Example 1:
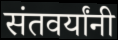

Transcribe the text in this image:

संतवर्यांनी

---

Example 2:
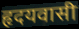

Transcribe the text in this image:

हृदयवासी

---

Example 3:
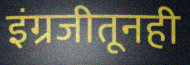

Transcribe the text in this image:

इंग्रजीतूनही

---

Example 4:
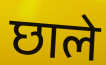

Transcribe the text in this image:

छाले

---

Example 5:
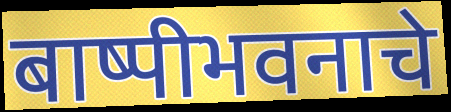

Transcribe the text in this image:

बाष्पीभवनाचे